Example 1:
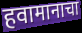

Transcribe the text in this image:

हवामानाचा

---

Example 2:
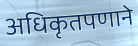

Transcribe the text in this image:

अधिकृतपणाने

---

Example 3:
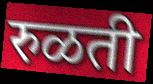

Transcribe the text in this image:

रुळती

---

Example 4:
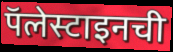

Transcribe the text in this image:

पॅलेस्टाइनची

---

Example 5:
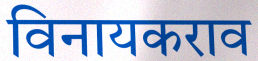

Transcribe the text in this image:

विनायकराव